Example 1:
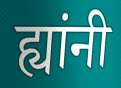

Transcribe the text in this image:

ह्यांनी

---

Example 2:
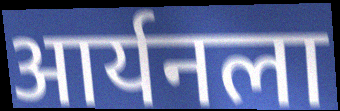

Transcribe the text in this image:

आर्यनला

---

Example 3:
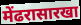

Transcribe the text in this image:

मेंढरासारखा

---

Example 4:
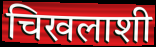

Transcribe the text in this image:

चिखलाशी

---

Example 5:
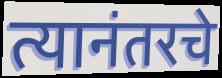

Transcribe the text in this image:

त्यानंतरचे